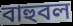
বাহুবল